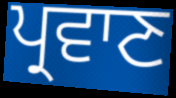
ਪ੍ਰਵਾਣ